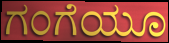
ಗಂಗೆಯೂ